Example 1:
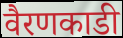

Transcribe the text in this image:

वैरणकाडी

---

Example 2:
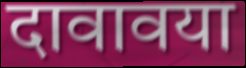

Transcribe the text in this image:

दावावया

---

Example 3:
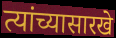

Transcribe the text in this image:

त्यांच्यासारखे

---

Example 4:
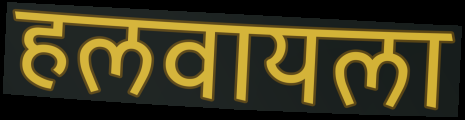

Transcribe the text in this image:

हलवायला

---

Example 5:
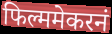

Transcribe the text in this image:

फिल्ममेकरनं